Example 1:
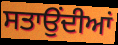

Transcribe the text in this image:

ਸਤਾਉਂਦੀਆਂ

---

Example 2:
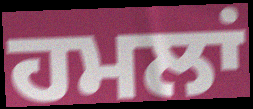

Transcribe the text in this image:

ਹਮਲਾਂ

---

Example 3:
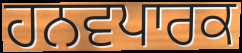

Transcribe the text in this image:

ਹਨਵਪਾਰਕ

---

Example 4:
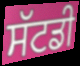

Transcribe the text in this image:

ਸੱਟਡੀ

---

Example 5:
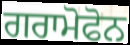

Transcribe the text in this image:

ਗਰਾਮੋਫੋਨ